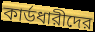
কার্ডধারীদের